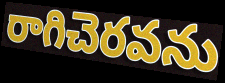
రాగిచెరవను